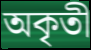
অকৃতী